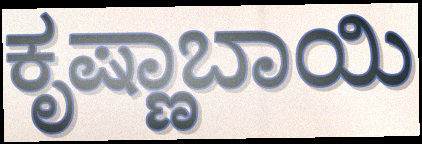
ಕೃಷ್ಣಾಬಾಯಿ